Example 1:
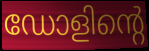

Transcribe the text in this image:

ഡോളിന്റെ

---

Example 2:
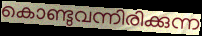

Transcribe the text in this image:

കൊണ്ടുവന്നിരിക്കുന്ന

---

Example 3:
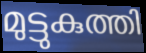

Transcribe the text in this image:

മുട്ടുകുത്തി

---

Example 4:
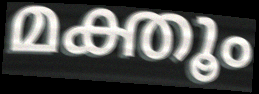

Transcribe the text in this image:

മക്തൂം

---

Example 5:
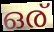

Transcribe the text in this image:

ഒര്